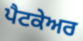
ਪੈਟਕੇਅਰ